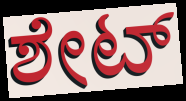
ಶೇಟ್